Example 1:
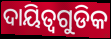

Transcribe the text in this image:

ଦାୟିତ୍ୱଗୁଡିକ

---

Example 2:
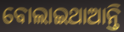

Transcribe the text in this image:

ବୋଲାଇଥାଆନ୍ତି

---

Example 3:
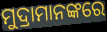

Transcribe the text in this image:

ମୁଦ୍ରାମାନଙ୍କରେ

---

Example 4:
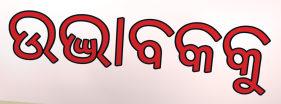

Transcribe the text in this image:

ଉଦ୍ଭାବକକୁ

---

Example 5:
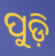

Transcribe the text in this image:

ପୁଡ଼ି